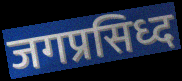
जगप्रसिध्द